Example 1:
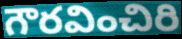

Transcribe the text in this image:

గౌరవించిరి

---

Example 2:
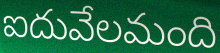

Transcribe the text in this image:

ఐదువేలమంది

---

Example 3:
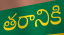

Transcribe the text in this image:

తరానికి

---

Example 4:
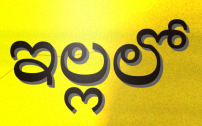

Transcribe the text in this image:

ఇల్లలో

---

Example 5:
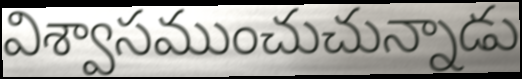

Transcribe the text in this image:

విశ్వాసముంచుచున్నాడు